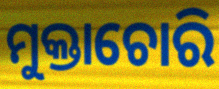
ମୁକ୍ତାଚୋରି